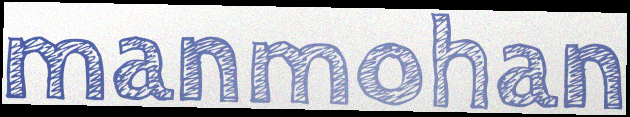
manmohan